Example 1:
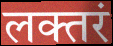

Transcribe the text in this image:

लक्तरं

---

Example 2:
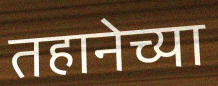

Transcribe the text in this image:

तहानेच्या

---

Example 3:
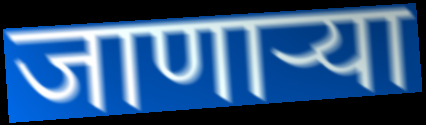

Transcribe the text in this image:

जाणार्‍या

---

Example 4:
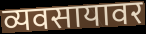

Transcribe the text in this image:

व्यवसायावर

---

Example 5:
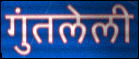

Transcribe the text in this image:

गुंतलेली